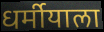
धर्मीयाला